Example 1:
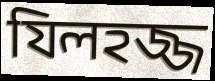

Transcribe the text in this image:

যিলহজ্জ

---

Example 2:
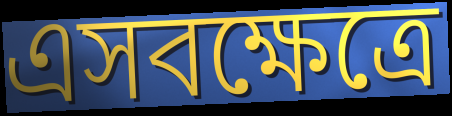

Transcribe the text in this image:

এসবক্ষেত্রে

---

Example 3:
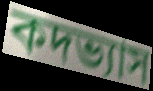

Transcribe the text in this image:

কদভ্যাস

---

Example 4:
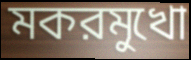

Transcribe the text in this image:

মকরমুখো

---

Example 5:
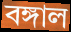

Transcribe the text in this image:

বঙ্গাল